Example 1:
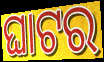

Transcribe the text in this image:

ଘାଟର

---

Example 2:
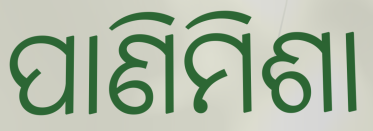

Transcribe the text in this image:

ପାଣିମିଶା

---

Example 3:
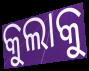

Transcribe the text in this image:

କୁଲାକୁ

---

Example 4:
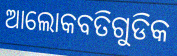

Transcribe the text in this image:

ଆଲୋକବତିଗୁଡିକ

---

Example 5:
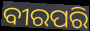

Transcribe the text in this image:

ବୀରପରି